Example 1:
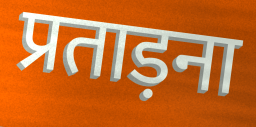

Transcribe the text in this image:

प्रताड़ना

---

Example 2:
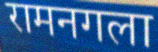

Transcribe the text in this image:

रामनगला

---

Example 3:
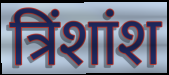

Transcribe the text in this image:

त्रिंशांश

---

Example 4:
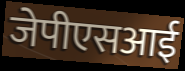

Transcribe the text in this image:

जेपीएसआई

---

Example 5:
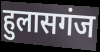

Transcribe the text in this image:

हुलासगंज